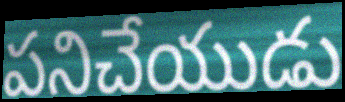
పనిచేయుడు